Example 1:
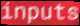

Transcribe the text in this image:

inputs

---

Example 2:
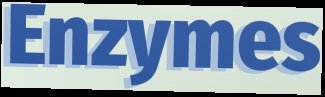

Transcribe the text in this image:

Enzymes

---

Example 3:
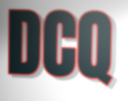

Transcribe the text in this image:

DCQ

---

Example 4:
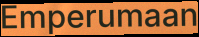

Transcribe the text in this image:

Emperumaan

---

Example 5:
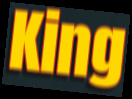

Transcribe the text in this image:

King